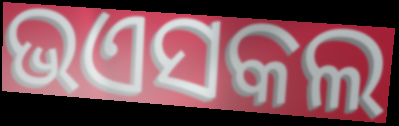
ଭଏସକଲ